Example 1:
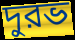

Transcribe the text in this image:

দুরভ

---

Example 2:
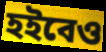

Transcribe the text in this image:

হইবেও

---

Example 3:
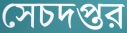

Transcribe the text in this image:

সেচদপ্তর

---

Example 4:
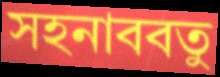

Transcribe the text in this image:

সহনাববতু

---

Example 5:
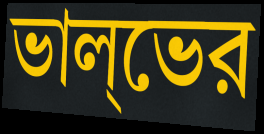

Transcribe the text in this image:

ভাল্ভের